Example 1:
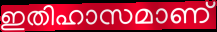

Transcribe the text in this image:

ഇതിഹാസമാണ്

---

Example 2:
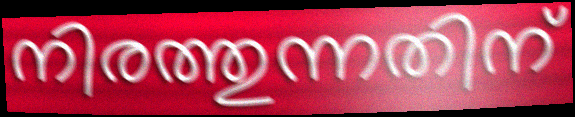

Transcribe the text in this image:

നിരത്തുന്നതിന്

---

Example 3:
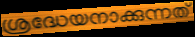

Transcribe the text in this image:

ശ്രദ്ധേയനാക്കുന്നത്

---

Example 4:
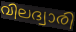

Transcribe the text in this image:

വിലദ്വാരി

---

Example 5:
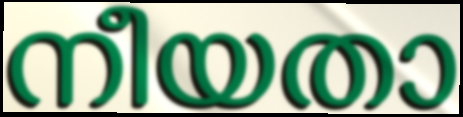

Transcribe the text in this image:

നീയതാ